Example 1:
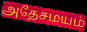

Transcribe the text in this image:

அதேசமயம்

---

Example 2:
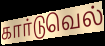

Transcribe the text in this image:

கார்டுவெல்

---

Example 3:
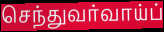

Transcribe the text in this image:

செந்துவர்வாய்ப்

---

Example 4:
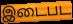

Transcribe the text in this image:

இடைபட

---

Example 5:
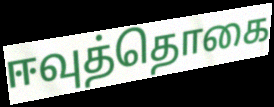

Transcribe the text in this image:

ஈவுத்தொகை